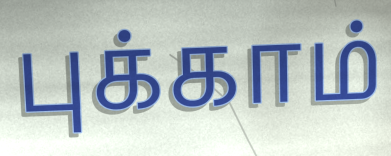
புக்காம்